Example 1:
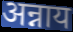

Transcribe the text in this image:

अन्नाय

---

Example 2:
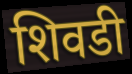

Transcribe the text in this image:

शिवडी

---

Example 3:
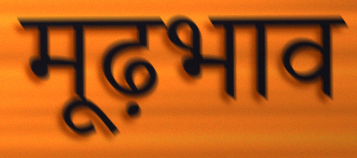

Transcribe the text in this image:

मूढ़भाव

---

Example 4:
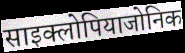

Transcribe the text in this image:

साइक्लोपियाजोनिक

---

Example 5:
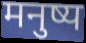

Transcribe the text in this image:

मनुष्य